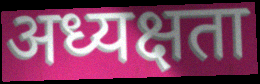
अध्यक्षता